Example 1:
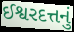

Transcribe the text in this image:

ઈશ્વરદત્તનું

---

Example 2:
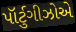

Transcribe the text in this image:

પૉર્ટુગીઝોએ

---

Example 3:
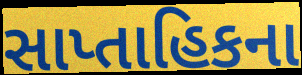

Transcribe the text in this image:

સાપ્તાહિકના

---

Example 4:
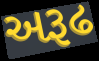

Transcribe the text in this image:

અરૂઢ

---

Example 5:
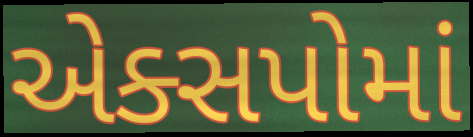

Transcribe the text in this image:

એક્સપોમાં